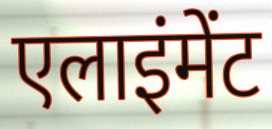
एलाइंमेंट